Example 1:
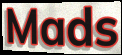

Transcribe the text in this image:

Mads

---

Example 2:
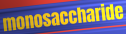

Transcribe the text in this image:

monosaccharide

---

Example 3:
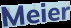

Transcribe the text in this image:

Meier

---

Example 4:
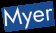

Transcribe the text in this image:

Myer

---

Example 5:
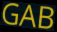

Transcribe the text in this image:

GAB